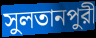
সুলতানপুরী